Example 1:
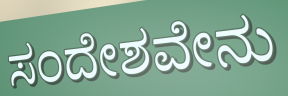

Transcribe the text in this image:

ಸಂದೇಶವೇನು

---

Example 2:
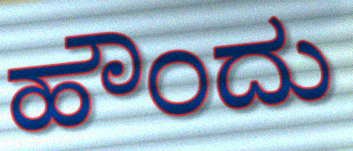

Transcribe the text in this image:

ಹೌಂದು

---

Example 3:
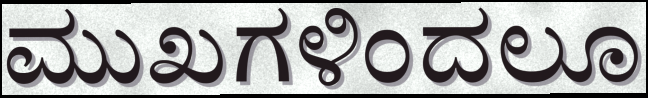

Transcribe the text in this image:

ಮುಖಗಳಿಂದಲೂ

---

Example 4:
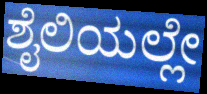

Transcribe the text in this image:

ಶೈಲಿಯಲ್ಲೇ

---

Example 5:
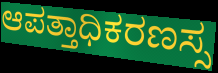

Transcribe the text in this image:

ಆಪತ್ತಾಧಿಕರಣಸ್ಸ